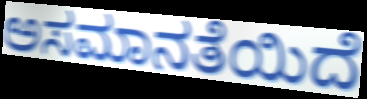
ಅಸಮಾನತೆಯಿದೆ